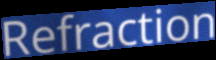
Refraction